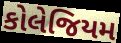
કોલેજિયમ